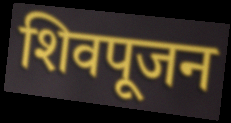
शिवपूजन